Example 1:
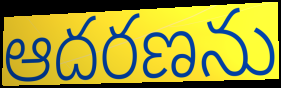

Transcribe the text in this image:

ఆదరణను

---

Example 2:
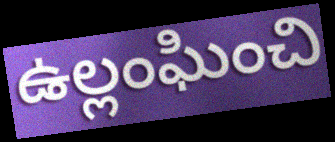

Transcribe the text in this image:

ఉల్లంఘించి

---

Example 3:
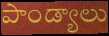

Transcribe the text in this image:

పాండ్యాలు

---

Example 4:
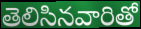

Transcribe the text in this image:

తెలిసినవారితో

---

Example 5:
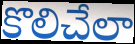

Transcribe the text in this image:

కొలిచేలా